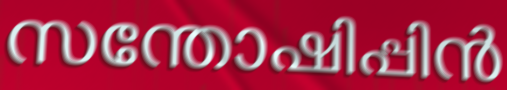
സന്തോഷിപ്പിൻ